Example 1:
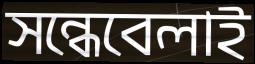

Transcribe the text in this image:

সন্ধেবেলাই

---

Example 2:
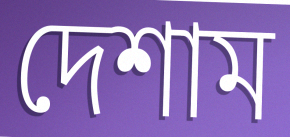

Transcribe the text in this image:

দেশাম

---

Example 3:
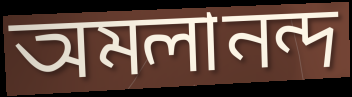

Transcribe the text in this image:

অমলানন্দ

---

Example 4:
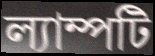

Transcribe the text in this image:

ল্যাম্পটি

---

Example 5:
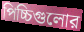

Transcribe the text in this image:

পিচ্চিগুলোর